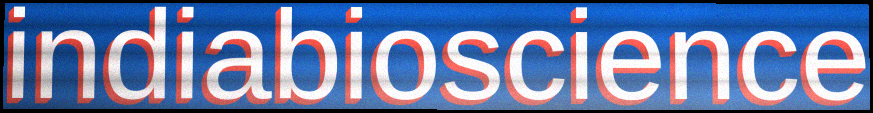
indiabioscience